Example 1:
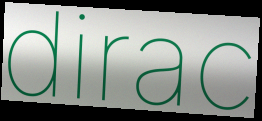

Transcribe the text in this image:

dirac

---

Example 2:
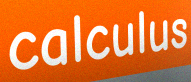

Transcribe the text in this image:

calculus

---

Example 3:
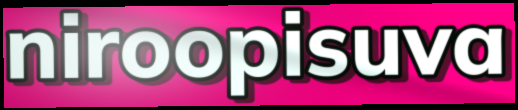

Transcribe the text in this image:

niroopisuva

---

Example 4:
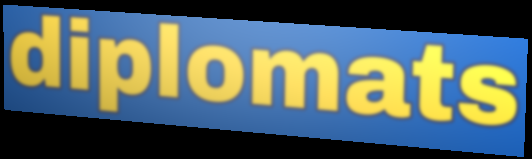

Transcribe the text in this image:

diplomats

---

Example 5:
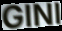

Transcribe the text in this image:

GINI